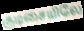
குடிசையிலே